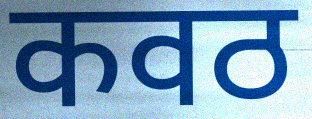
कवठ